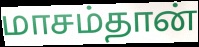
மாசம்தான்